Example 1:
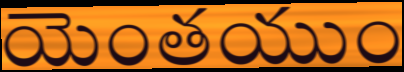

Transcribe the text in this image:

యెంతయుం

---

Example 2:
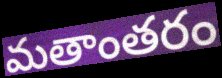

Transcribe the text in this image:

మతాంతరం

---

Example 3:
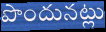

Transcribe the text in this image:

పొందునట్లు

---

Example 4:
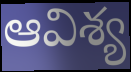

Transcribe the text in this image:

ఆవిశ్య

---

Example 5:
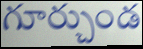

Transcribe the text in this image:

గూర్చుండ